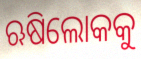
ଋଷିଲୋକକୁ